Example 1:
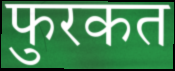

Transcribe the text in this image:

फुरकत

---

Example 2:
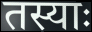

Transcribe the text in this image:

तस्याः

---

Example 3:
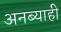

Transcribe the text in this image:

अनब्याही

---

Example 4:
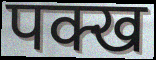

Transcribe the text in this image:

पक्ख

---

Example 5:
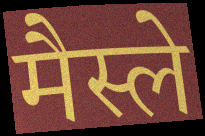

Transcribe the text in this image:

मैस्ले